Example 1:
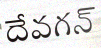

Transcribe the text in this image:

దేవగన్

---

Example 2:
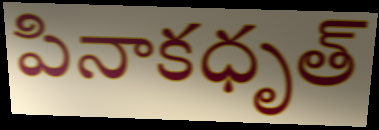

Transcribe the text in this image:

పినాకధృత్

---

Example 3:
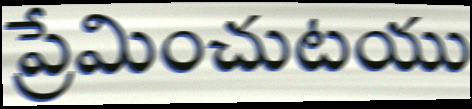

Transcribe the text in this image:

ప్రేమించుటయు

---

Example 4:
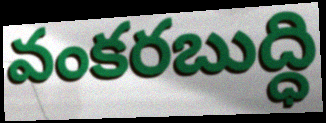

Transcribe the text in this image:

వంకరబుద్ధి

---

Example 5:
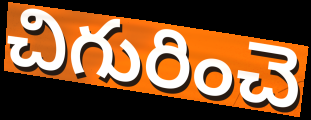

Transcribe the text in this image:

చిగురించె